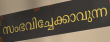
സംഭവിച്ചേക്കാവുന്ന